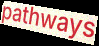
pathways